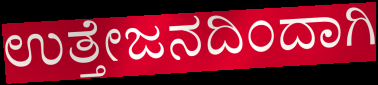
ಉತ್ತೇಜನದಿಂದಾಗಿ